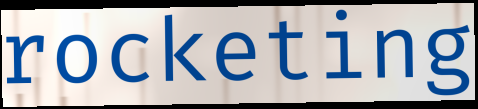
rocketing